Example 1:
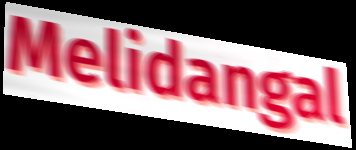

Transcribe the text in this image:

Melidangal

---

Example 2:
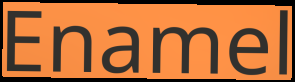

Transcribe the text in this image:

Enamel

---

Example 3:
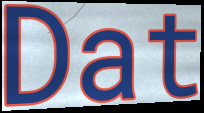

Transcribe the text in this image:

Dat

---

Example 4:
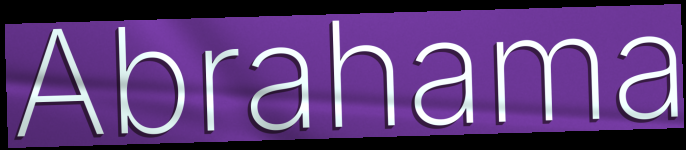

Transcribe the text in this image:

Abrahama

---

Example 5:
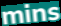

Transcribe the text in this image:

mins